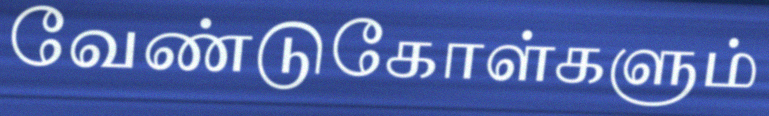
வேண்டுகோள்களும்